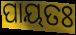
ପାୟତଃ